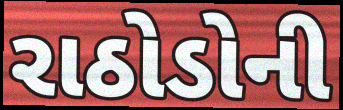
રાઠોડોની